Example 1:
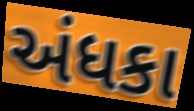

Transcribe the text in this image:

અંધકા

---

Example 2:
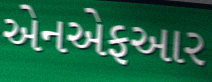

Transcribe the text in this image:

એનએફઆર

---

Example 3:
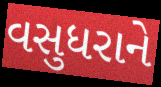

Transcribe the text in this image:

વસુધરાને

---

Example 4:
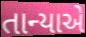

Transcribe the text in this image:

તાન્યાએ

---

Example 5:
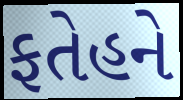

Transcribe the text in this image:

ફતેહને